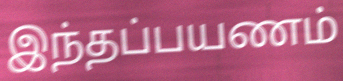
இந்தப்பயணம்